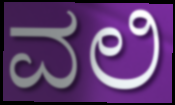
ವಲಿ